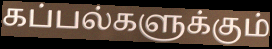
கப்பல்களுக்கும்